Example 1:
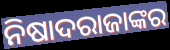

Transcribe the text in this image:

ନିଷାଦରାଜାଙ୍କର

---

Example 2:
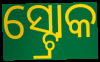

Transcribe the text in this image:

ସ୍ଟ୍ରୋକ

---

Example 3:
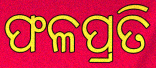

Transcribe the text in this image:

ଫଳପ୍ରତି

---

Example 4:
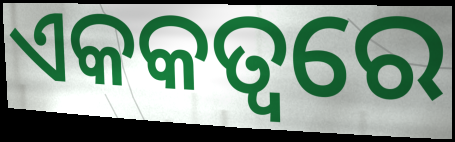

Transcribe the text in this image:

ଏକକତ୍ୱରେ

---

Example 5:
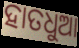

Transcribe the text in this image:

ହାତଧୁଆ